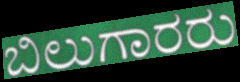
ಬಿಲುಗಾರರು